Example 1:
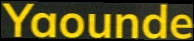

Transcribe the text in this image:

Yaounde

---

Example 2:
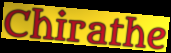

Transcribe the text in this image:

Chirathe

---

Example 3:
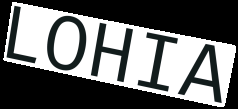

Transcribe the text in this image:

LOHIA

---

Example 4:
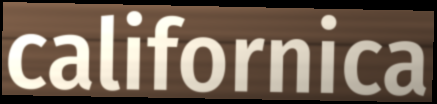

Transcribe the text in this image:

californica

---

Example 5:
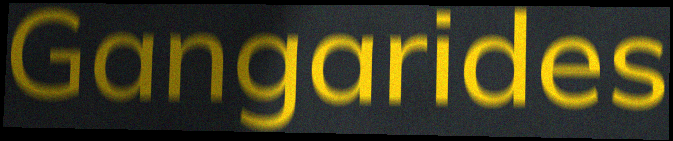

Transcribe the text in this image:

Gangarides